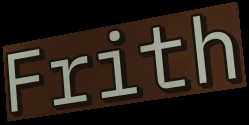
Frith